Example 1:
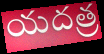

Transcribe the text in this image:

యదత్ర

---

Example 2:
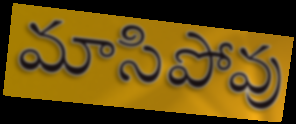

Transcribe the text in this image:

మాసిపోవు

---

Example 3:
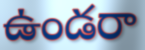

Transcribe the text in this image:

ఉండరా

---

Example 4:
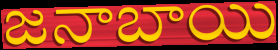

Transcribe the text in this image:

జనాబాయి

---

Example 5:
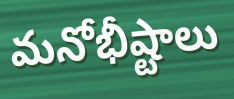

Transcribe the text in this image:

మనోభీష్టాలు